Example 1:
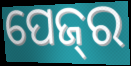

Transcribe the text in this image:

ପେଜ୍‌ର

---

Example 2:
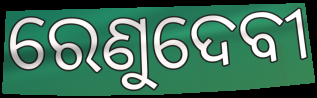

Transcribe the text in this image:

ରେଣୁଦେବୀ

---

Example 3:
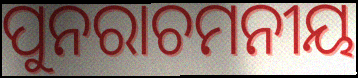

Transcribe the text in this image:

ପୁନରାଚମନୀୟ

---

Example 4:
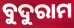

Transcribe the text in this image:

ବୁଦୁରାମ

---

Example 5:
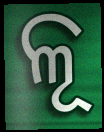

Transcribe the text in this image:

ଳୂ